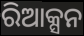
ରିଆକ୍ସନ